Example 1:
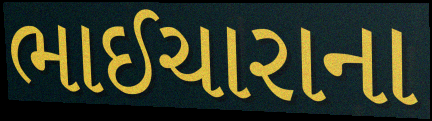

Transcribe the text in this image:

ભાઈચારાના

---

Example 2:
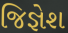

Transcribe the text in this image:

જિજ્ઞેશ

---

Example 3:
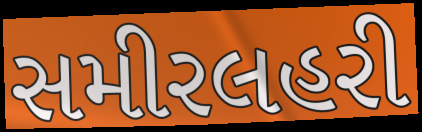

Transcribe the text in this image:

સમીરલહરી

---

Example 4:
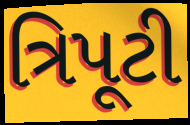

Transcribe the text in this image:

ત્રિપૂટી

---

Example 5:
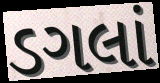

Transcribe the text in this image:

ડગલાં